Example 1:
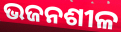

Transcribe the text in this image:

ଭଜନଶୀଳ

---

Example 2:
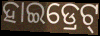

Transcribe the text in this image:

ହାଇଡ୍ରେଟ୍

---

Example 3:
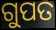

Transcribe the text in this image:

ଗୁପତ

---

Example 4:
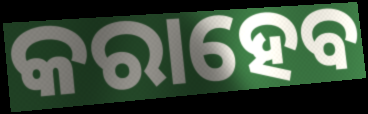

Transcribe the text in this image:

କରାହେବ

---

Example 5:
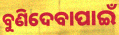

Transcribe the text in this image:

ବୁଣିଦେବାପାଇଁ